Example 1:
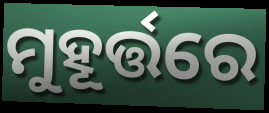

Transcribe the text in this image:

ମୁହୂର୍ତ୍ତରେ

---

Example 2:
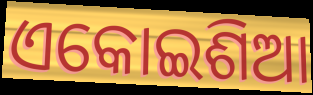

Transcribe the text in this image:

ଏକୋଇଶିଆ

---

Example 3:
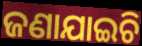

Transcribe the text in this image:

ଜଣାଯାଇଚି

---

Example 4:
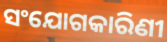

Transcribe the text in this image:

ସଂଯୋଗକାରିଣୀ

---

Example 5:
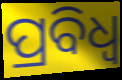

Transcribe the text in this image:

ପ୍ରବିଧ୍ଵ